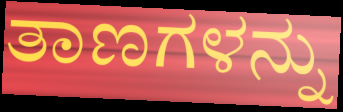
ತಾಣಗಳನ್ನು